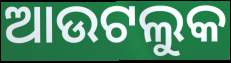
ଆଉଟଲୁକ